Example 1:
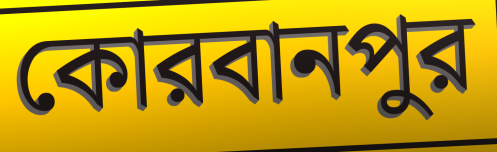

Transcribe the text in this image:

কোরবানপুর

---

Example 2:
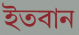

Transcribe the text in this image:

ইতবান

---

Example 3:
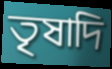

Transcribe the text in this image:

তৃষাদি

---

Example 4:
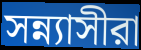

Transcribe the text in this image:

সন্ন্যাসীরা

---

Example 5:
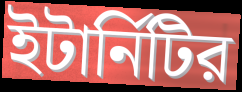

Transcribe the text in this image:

ইটার্নিটির